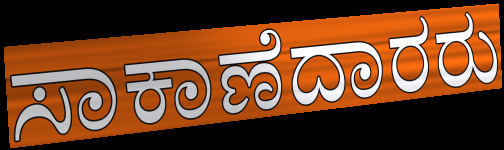
ಸಾಕಾಣೆದಾರರು